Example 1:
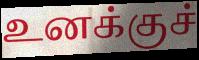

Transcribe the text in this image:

உனக்குச்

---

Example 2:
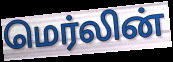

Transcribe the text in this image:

மெர்லின்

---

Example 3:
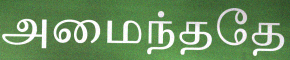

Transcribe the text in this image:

அமைந்ததே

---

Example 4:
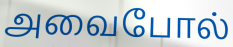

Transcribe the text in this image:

அவைபோல்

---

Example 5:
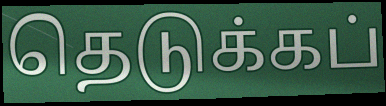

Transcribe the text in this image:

தெடுக்கப்